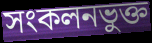
সংকলনভুক্ত